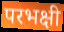
परभक्षी